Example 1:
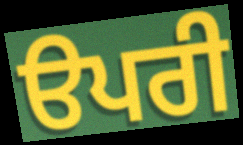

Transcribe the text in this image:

ੳਪਰੀ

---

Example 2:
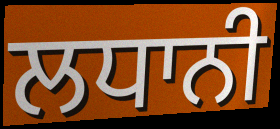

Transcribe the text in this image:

ਲਧਾਨੀ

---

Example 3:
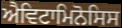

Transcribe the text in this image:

ਐਵਿਟਾਮਿਨੋਸਿਸ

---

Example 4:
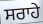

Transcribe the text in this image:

ਸਰਾਹੇ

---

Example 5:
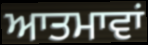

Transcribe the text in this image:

ਆਤਮਾਵਾਂ